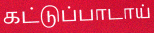
கட்டுப்பாடாய்